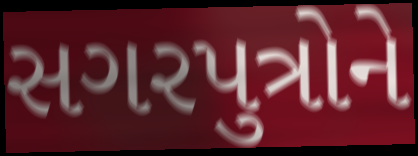
સગરપુત્રોને